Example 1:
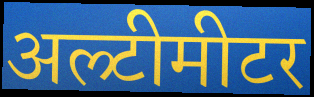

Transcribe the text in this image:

अल्टीमीटर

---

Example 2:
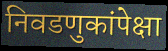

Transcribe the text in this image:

निवडणुकांपेक्षा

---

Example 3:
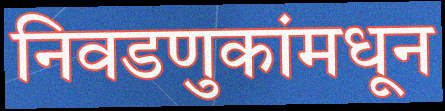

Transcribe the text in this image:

निवडणुकांमधून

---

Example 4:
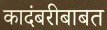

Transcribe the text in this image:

कादंबरीबाबत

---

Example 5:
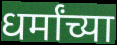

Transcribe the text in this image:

धर्मांच्या